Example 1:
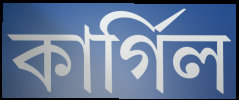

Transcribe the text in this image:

কার্গিল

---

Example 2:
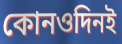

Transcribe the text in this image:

কোনওদিনই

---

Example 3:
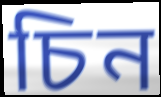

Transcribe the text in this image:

চিন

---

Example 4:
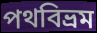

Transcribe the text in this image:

পথবিভ্রম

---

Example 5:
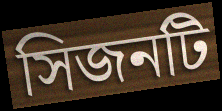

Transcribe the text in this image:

সিজনটি